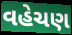
વહેચણ